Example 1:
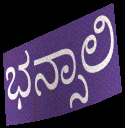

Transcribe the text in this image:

ಭನ್ಸಾಲಿ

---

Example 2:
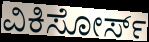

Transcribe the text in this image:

ವಿಕಿಸೋರ್ಸ್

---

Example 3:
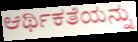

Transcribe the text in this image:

ಆರ್ಥಿಕತೆಯನ್ನು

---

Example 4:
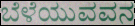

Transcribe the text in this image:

ಬೆಳೆಯುವವನ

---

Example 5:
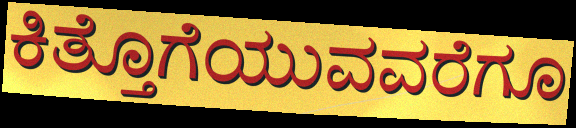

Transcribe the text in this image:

ಕಿತ್ತೊಗೆಯುವವರೆಗೂ